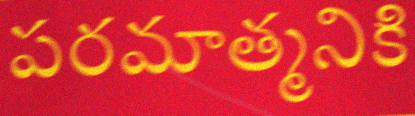
పరమాత్మనికి